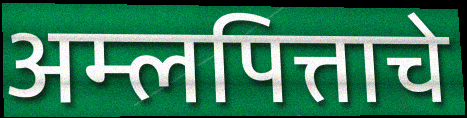
अम्लपित्ताचे